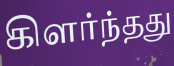
கிளர்ந்தது